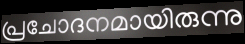
പ്രചോദനമായിരുന്നു